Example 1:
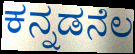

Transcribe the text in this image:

ಕನ್ನಡನೆಲ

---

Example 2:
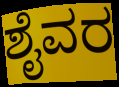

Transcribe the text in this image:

ಶೈವರ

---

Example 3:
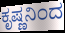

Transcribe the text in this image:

ಕೃಷ್ಣನಿಂದ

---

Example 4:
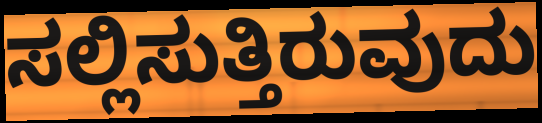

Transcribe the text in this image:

ಸಲ್ಲಿಸುತ್ತಿರುವುದು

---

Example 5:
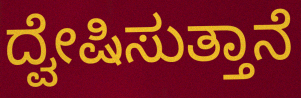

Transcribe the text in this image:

ದ್ವೇಷಿಸುತ್ತಾನೆ